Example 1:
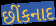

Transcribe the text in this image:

છીંકનાદ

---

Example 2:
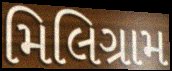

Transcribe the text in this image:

મિલિગ્રામ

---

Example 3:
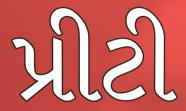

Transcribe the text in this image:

પ્રીટી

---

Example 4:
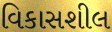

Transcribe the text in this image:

વિકાસશીલ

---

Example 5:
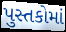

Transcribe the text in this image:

પુસ્તકોમાં